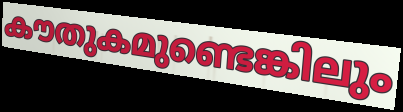
കൗതുകമുണ്ടെങ്കിലും